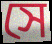
সে